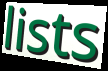
lists